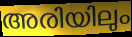
അരിയിലും